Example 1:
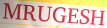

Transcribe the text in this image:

MRUGESH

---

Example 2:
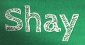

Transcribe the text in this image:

Shay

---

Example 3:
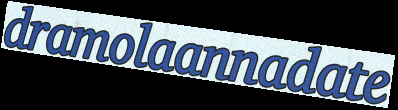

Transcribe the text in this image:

dramolaannadate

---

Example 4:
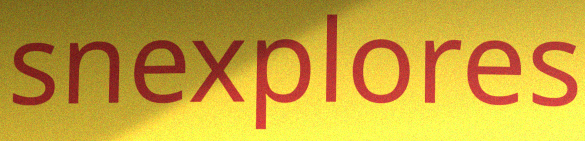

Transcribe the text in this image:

snexplores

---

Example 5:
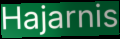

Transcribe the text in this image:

Hajarnis